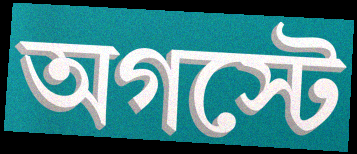
অগস্টে